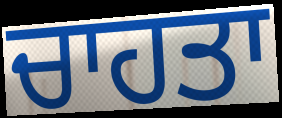
ਚਾਹਤਾ